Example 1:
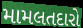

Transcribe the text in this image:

મામલતદારો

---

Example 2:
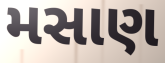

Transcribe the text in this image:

મસાણ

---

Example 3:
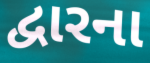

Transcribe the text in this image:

દ્વારના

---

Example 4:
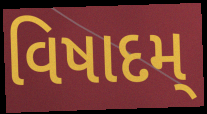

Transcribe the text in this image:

વિષાદમ્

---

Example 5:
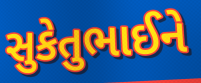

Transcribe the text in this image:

સુકેતુભાઈને